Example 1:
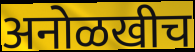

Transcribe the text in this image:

अनोळखीच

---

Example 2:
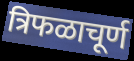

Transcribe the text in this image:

त्रिफळाचूर्ण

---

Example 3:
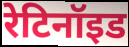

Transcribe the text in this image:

रेटिनॉइड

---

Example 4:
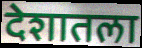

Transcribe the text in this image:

देशातला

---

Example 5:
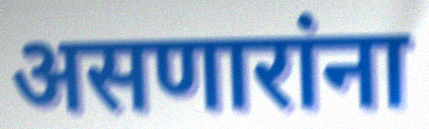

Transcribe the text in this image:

असणारांना